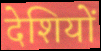
देशियों